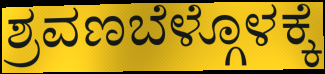
ಶ್ರವಣಬೆಳ್ಗೊಳಕ್ಕೆ